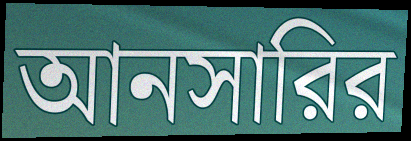
আনসারির